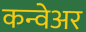
कन्वेअर